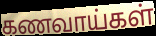
கணவாய்கள்